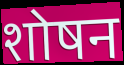
शोषन